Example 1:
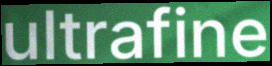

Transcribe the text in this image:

ultrafine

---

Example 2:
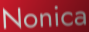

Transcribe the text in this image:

Nonica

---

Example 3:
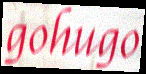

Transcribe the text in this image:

gohugo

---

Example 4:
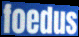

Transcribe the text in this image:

foedus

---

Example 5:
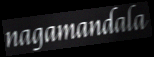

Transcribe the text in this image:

nagamandala